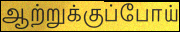
ஆற்றுக்குப்போய்